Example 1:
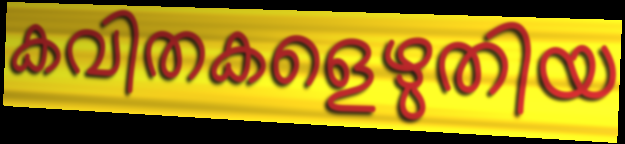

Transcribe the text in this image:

കവിതകളെഴുതിയ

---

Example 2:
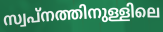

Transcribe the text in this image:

സ്വപ്നത്തിനുള്ളിലെ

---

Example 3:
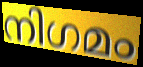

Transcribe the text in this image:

നിഗമം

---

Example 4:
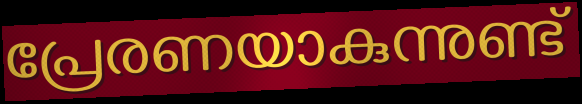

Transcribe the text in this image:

പ്രേരണയാകുന്നുണ്ട്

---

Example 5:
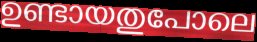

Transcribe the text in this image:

ഉണ്ടായതുപോലെ